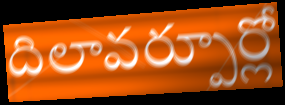
దిలావర్పూర్లో